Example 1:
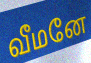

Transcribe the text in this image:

வீமனே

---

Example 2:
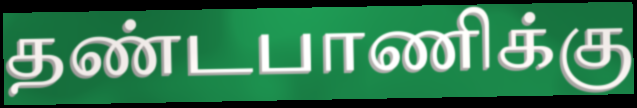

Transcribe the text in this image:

தண்டபாணிக்கு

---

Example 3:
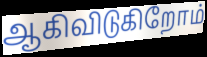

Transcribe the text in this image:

ஆகிவிடுகிறோம்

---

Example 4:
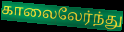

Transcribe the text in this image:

காலைலேர்ந்து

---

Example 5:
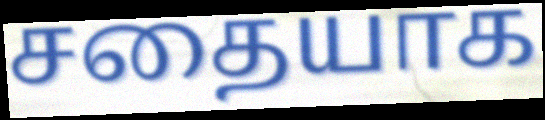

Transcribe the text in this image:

சதையாக